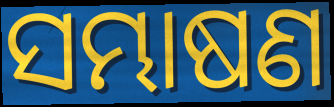
ସମ୍ଭାଷଣ